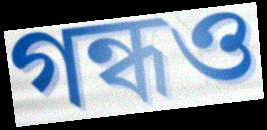
গন্ধও